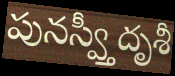
పునస్వ్తీదృశీ